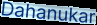
Dahanukar